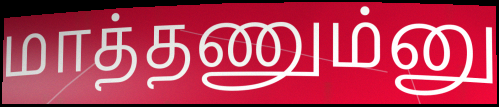
மாத்தணும்னு